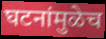
घटनांमुळेच